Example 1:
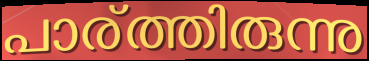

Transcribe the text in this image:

പാര്ത്തിരുന്നു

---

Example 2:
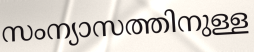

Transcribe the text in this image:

സംന്യാസത്തിനുള്ള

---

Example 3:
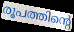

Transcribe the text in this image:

രൂപത്തിന്റെ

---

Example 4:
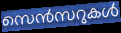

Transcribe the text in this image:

സെൻസറുകൾ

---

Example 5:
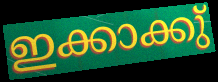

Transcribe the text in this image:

ഇക്കാക്കു്